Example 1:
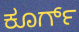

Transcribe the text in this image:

ಕೂರ್ಗ್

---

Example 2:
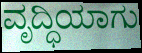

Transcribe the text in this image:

ವೃದ್ಧಿಯಾಗು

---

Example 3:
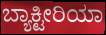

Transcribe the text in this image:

ಬ್ಯಾಕ್ಟೀರಿಯಾ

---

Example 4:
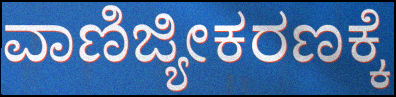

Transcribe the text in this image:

ವಾಣಿಜ್ಯೀಕರಣಕ್ಕೆ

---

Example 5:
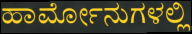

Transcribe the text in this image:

ಹಾರ್ಮೋನುಗಳಲ್ಲಿ